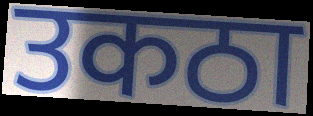
उकठा